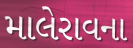
માલેરાવના